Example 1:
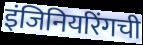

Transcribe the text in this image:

इंजिनियरिंगची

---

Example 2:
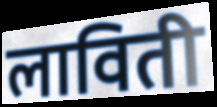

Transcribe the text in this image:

लाविती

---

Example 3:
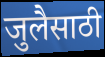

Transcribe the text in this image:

जुलैसाठी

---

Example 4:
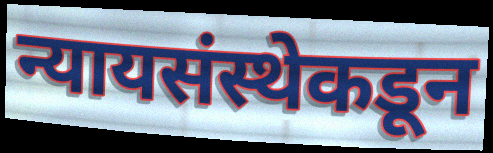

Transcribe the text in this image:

न्यायसंस्थेकडून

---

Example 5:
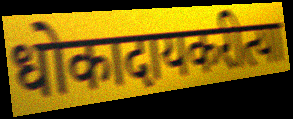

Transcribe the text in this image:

धोकादायकरीत्या